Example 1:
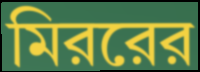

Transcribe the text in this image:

মিররের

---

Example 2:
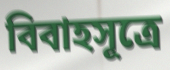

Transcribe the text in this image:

বিবাহসূত্রে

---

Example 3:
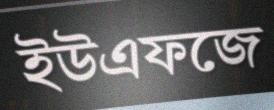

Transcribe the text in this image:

ইউএফজে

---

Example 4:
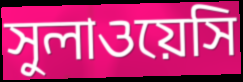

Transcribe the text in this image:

সুলাওয়েসি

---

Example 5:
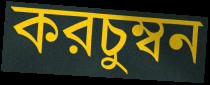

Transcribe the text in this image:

করচুম্বন